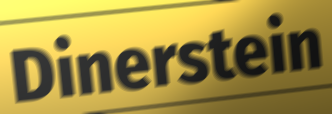
Dinerstein